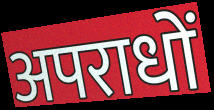
अपराधों